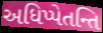
અધિપ્પેતન્તિ